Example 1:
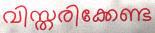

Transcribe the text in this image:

വിസ്തരിക്കേണ്ട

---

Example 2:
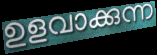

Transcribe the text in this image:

ഉളവാക്കുന്ന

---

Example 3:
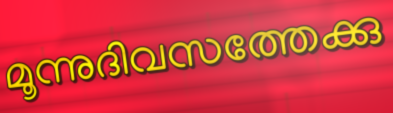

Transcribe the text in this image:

മൂന്നുദിവസത്തേക്കു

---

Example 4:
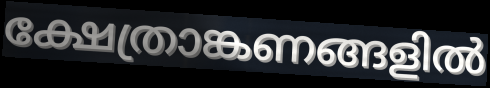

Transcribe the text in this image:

ക്ഷേത്രാങ്കണങ്ങളിൽ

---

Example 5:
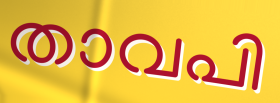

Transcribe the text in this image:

താവപി